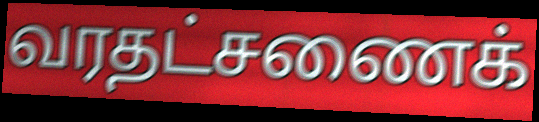
வரதட்சணைக்